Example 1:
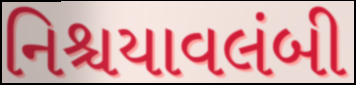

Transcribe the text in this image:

નિશ્ચયાવલંબી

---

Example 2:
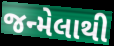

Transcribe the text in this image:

જન્મેલાથી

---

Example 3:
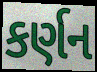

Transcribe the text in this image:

કર્ણન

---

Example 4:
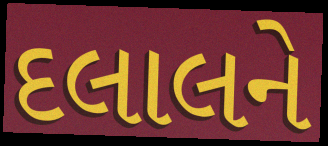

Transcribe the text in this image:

દલાલને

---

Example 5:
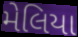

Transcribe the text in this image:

મેલિયા